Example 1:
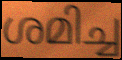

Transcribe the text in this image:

ശമിച്ച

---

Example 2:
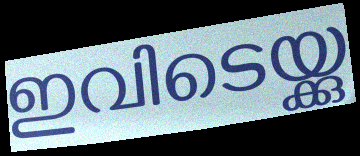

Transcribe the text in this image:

ഇവിടെയ്ക്കു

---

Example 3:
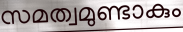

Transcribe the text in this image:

സമത്വമുണ്ടാകും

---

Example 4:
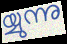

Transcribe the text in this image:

യ്യുന്നു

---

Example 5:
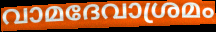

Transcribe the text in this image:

വാമദേവാശ്രമം